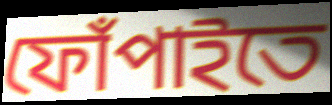
ফোঁপাইতে